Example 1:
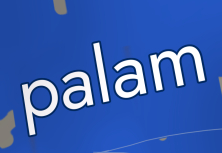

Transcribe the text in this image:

palam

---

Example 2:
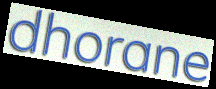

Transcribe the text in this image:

dhorane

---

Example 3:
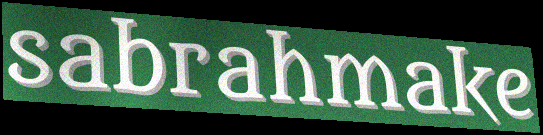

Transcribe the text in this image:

sabrahmake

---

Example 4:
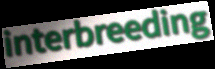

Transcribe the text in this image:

interbreeding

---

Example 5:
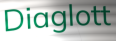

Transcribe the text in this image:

Diaglott